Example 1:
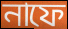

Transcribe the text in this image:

নাফে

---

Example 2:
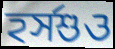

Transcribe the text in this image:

হর্সশুও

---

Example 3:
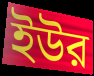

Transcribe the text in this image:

ইউর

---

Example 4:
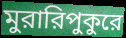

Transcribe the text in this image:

মুরারিপুকুরে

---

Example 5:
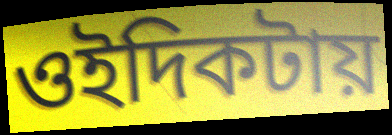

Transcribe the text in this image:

ওইদিকটায়